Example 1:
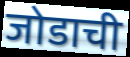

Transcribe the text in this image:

जोडाची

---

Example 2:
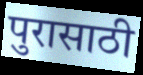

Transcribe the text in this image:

पुरासाठी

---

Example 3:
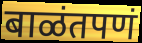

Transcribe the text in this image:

बाळंतपणं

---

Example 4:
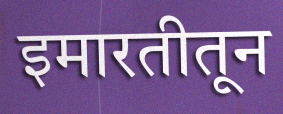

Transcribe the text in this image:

इमारतीतून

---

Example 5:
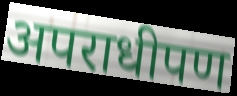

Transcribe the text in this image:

अपराधीपण